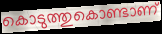
കൊടുത്തുകൊണ്ടാണ്